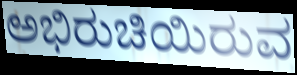
ಅಭಿರುಚಿಯಿರುವ